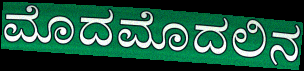
ಮೊದಮೊದಲಿನ